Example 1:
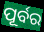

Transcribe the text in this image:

ପୂର୍ବର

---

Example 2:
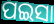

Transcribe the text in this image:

ପଇସା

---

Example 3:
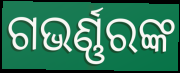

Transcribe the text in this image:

ଗଭର୍ଣ୍ଣରଙ୍କ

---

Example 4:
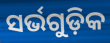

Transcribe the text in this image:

ସର୍ଭଗୁଡ଼ିକ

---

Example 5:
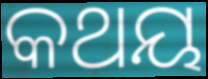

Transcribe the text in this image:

କଥୟ